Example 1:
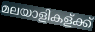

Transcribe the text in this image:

മലയാളികള്ക്ക്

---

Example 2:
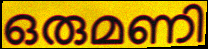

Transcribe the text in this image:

ഒരുമണി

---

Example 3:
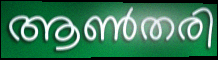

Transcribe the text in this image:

ആൺതരി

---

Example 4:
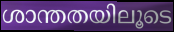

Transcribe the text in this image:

ശാന്തതയിലൂടെ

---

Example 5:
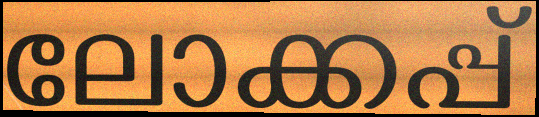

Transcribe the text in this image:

ലോക്കപ്പ്